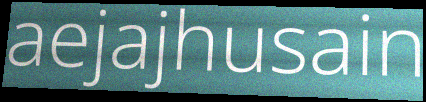
aejajhusain